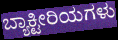
ಬ್ಯಾಕ್ಟೀರಿಯಗಳು